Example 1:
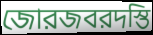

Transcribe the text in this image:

জোরজবরদস্তি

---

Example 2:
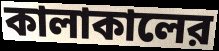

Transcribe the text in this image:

কালাকালের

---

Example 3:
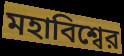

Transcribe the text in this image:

মহাবিশ্বের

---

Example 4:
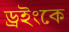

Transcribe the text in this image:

ড্রইংকে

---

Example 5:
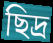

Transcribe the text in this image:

ছিদ্র